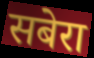
सबेरा